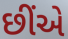
છીંએ